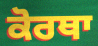
ਕੋਰਥਾ